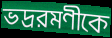
ভদ্ররমণীকে